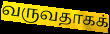
வருவதாகக்